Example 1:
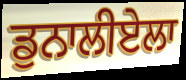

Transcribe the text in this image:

ਡੁਨਾਲੀਏਲਾ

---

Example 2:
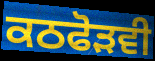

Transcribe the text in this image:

ਕਠਫੋੜਵੀ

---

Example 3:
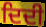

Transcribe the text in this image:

ਦਿਦੀ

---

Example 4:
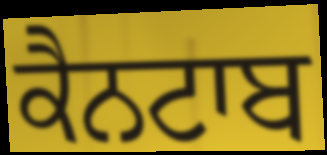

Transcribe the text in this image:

ਕੈਨਟਾਬ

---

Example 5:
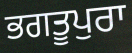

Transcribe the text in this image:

ਭਗਤੂਪੁਰਾ